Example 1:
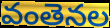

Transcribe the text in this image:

వంతెనల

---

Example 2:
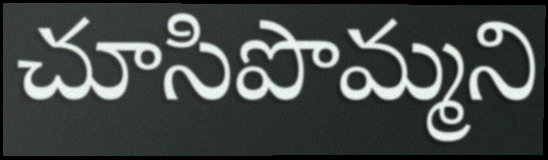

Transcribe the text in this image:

చూసిపొమ్మని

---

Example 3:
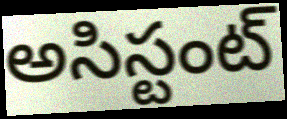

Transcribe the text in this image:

అసిస్టంట్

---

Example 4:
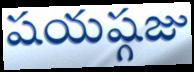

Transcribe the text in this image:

షయష్గజు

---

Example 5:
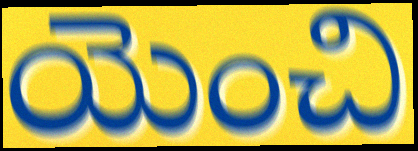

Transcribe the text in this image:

యెంచి